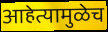
आहेत्यामुळेच